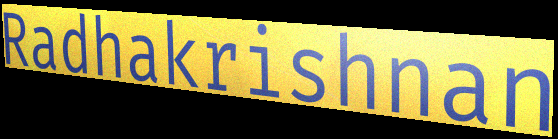
Radhakrishnan